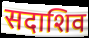
सदाशिव